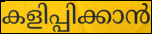
കളിപ്പിക്കാൻ